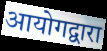
आयोगद्वारा